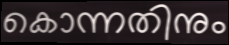
കൊന്നതിനും